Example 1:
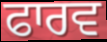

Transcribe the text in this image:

ਫਾਰਵ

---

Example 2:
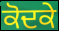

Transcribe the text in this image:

ਕੋਦਕੇ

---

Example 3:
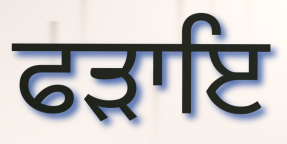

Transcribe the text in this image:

ਫੜਾਇ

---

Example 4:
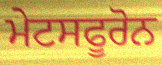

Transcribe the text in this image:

ਮੇਟਸਫੂਰੋਨ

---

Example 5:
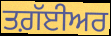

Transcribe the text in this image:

ਤਗ਼ੱਈਅਰ